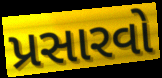
પ્રસારવો